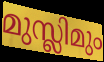
മുസ്ലിമും